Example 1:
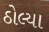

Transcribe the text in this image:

ઠોલ્યા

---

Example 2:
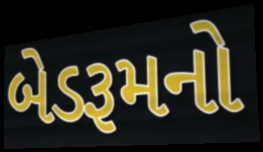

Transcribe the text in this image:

બેડરૂમનો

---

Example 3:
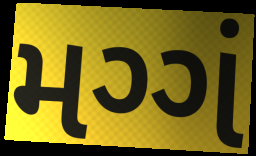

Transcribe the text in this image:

મગ્ગં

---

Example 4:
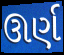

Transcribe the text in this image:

ઊર્ણ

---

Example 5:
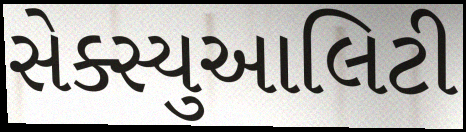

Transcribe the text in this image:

સેક્સ્યુઆલિટી